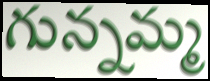
గున్నమ్మ